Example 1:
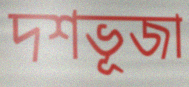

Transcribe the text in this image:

দশভূজা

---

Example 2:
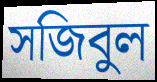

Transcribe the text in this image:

সজিবুল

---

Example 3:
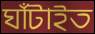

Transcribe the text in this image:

ঘাঁটাইত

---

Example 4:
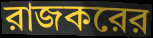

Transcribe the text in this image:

রাজকরের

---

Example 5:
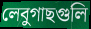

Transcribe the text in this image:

লেবুগাছগুলি